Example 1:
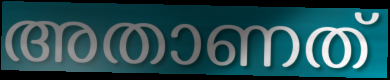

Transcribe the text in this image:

അതാണത്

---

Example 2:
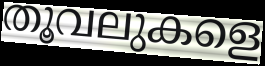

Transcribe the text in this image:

തൂവലുകളെ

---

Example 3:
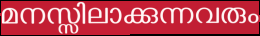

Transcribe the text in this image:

മനസ്സിലാക്കുന്നവരും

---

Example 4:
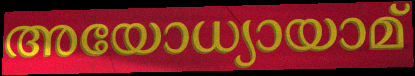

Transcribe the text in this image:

അയോധ്യായാമ്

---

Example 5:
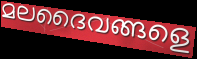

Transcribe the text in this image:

മലദൈവങ്ങളെ